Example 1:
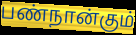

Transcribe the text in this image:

பண்நான்கும்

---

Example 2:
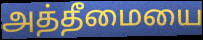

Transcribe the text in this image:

அத்தீமையை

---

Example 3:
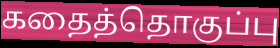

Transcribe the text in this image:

கதைத்தொகுப்பு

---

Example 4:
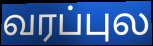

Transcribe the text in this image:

வரப்புல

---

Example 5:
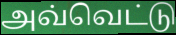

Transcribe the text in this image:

அவ்வெட்டு